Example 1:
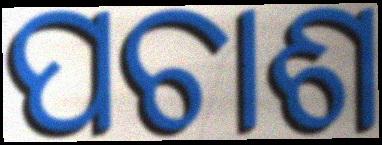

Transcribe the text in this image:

ପଚାଶ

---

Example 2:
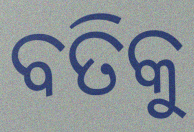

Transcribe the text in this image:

ବତିକୁ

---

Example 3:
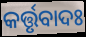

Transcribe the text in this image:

କର୍ତ୍ତୃବାଦଃ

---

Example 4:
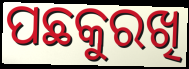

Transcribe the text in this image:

ପଛକୁରଖି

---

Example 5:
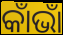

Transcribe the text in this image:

କାଁଭାଁ